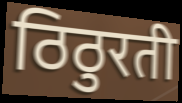
ठिठुरती